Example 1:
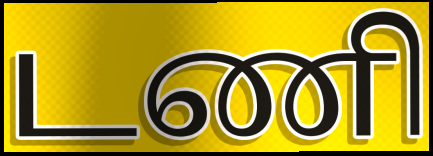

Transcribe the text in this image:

டணி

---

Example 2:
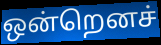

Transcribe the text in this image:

ஒன்றெனச்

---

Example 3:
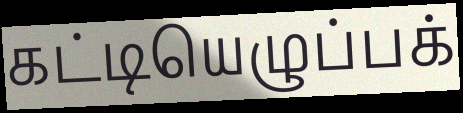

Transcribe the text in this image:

கட்டியெழுப்பக்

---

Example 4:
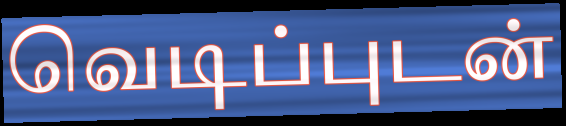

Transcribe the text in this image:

வெடிப்புடன்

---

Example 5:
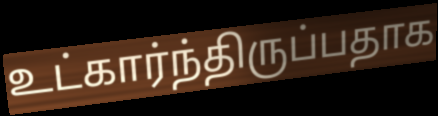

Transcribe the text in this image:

உட்கார்ந்திருப்பதாக